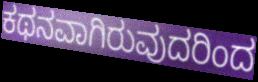
ಕಥನವಾಗಿರುವುದರಿಂದ